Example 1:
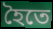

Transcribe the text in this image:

হৈতে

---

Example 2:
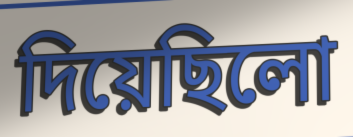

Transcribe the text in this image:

দিয়েছিলো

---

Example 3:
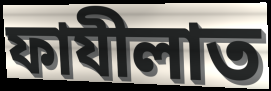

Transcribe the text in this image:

ফাযীলাত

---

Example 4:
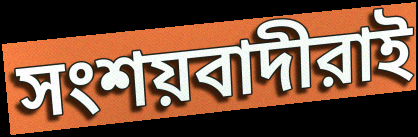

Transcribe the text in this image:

সংশয়বাদীরাই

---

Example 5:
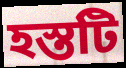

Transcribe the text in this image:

হস্তটি